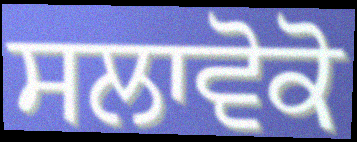
ਸਲਾਵੋਕੋ